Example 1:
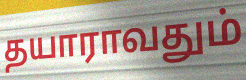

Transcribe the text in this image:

தயாராவதும்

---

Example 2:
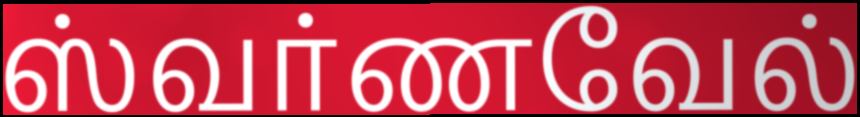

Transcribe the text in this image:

ஸ்வர்ணவேல்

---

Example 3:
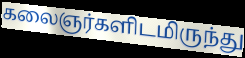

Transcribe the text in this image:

கலைஞர்களிடமிருந்து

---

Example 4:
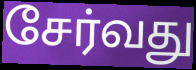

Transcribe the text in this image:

சேர்வது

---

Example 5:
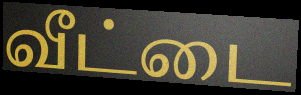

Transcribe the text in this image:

வீட்டை